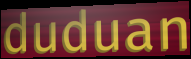
duduan